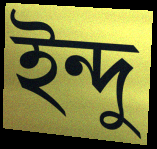
ইন্দু